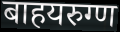
बाहयरुग्ण